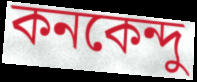
কনকেন্দু